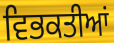
ਵਿਭਕਤੀਆਂ